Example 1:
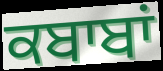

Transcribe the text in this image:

ਕਬਾਬਾਂ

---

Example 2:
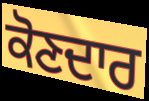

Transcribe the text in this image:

ਕੋਣਦਾਰ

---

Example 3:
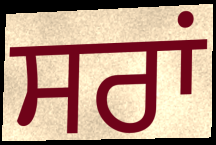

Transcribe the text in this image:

ਸਰਾਂ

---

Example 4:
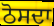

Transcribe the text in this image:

ਠੋਸਦਾ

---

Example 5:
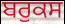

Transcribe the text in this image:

ਬਰੁਕਸ